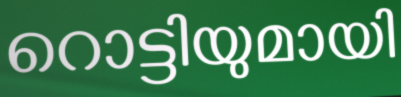
റൊട്ടിയുമായി